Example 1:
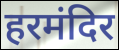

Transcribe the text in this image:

हरमंदिर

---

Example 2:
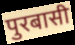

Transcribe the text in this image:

पुरबासी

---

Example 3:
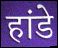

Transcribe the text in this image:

हांडे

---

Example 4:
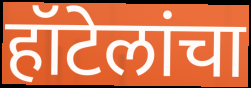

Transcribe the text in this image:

हॉटेलांचा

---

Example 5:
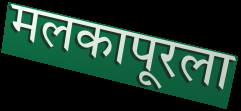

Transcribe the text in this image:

मलकापूरला